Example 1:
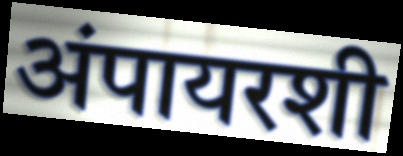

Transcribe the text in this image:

अंपायरशी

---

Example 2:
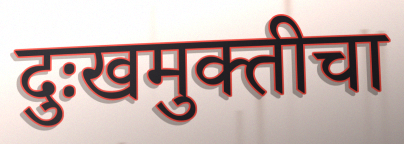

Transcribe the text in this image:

दुःखमुक्तीचा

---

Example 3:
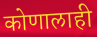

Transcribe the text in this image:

कोणालाही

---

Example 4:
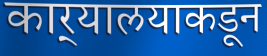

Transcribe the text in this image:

कार्यालयाकडून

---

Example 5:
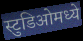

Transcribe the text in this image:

स्टुडिओमध्ये